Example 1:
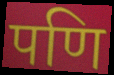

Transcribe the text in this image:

पणि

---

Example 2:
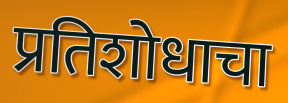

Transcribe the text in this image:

प्रतिशोधाचा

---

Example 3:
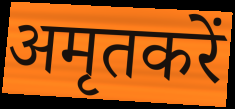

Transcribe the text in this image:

अमृतकरें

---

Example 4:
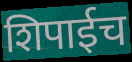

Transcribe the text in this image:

शिपाईच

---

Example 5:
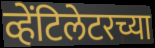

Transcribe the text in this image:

व्हेंटिलेटरच्या